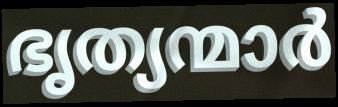
ഭൃത്യന്മാർ